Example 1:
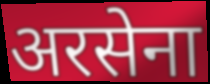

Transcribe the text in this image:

अरसेना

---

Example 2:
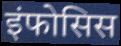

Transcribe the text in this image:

इंफोसिस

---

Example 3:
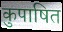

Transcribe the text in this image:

कुपाषित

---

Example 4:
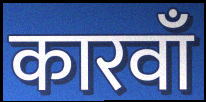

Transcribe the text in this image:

कारवाँ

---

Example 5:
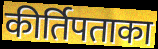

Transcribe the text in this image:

कीर्तिपताका